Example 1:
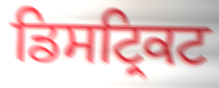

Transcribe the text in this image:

ਡਿਸਟ੍ਰਿਕਟ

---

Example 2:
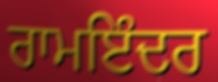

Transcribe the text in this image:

ਰਾਮਇੰਦਰ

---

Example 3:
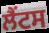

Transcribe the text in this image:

ਲੈਂਟਸ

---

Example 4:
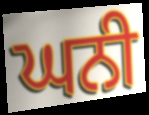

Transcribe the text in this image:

ਘਨੀ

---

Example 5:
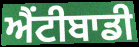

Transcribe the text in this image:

ਐਂਟੀਬਾਡੀ